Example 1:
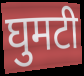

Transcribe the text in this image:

घुमटी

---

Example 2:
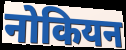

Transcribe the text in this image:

नोकियन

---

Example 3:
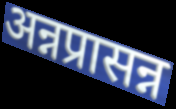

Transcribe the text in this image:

अन्नप्रासन्न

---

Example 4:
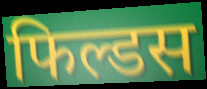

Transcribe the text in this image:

फिल्डस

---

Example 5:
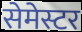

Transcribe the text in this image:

सेमेस्टर